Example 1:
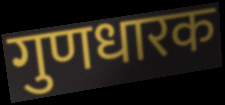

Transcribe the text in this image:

गुणधारक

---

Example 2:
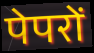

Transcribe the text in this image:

पेपरों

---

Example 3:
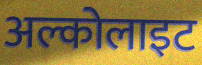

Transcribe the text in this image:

अल्कोलाइट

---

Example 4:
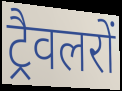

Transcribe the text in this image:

ट्रैवलरों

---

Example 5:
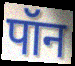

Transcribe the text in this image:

पॉन